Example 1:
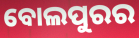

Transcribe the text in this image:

ବୋଲପୁରର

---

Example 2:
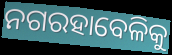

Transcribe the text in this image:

ନଗରହାବେଳିକୁ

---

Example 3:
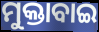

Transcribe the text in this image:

ମୁକ୍ତାବାଇ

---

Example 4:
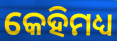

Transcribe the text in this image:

କେହିମଧ୍ୟ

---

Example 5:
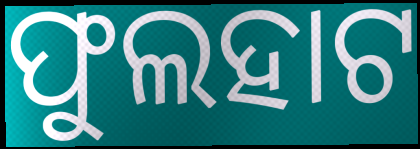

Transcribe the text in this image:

ଫୁଲହାଟ